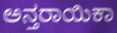
ಅನ್ತರಾಯಿಕಾ